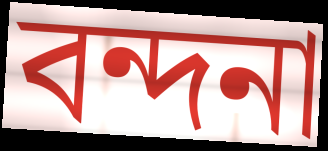
বন্দনা